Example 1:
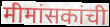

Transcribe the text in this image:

मीमांसकांची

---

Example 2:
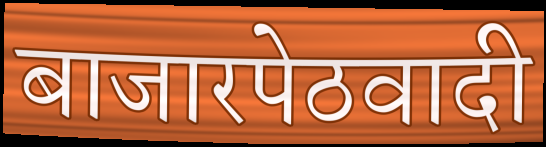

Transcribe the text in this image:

बाजारपेठवादी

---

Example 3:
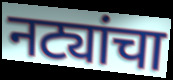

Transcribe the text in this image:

नट्यांचा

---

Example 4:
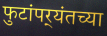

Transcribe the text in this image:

फुटांपर्यंतच्या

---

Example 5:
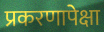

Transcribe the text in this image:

प्रकरणापेक्षा